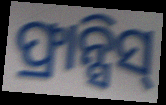
ଫ୍ରାନ୍ସିସ୍